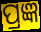
ପ୍ରଜ୍ଞ